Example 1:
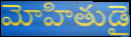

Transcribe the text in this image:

మోహితుడై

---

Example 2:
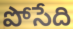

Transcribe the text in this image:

పోసేది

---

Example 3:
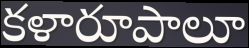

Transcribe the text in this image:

కళారూపాలూ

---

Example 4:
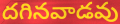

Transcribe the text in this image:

దగినవాడవు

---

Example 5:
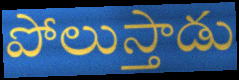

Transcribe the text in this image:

పోలుస్తాడు